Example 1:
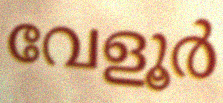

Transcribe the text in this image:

വേളൂർ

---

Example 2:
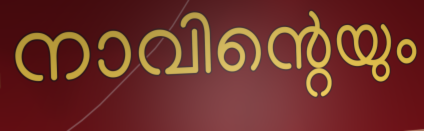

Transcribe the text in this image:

നാവിന്റെയും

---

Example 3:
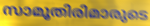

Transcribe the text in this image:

സാമൂതിരിമാരുടെ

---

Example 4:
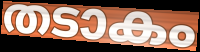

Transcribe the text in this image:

തടാകം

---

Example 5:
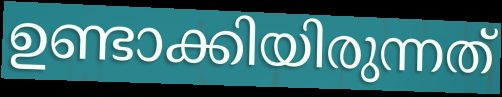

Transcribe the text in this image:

ഉണ്ടാക്കിയിരുന്നത്